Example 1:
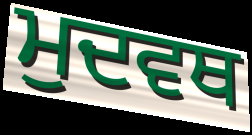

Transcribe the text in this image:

ਮੁਦਵਥ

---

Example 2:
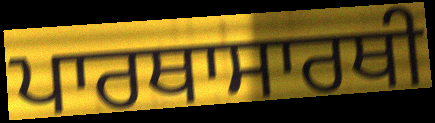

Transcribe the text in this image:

ਪਾਰਥਾਸਾਰਥੀ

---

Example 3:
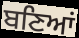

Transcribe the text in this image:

ਬਣਿਆਂ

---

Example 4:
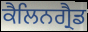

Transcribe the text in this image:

ਕੈਲਿਨਗ੍ਰੈਡ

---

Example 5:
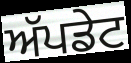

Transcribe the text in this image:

ਅੱਪਡੇਟ